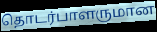
தொடர்பாளருமான